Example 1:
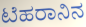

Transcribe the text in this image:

ಟೆಹರಾನಿನ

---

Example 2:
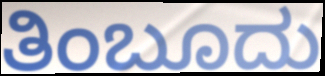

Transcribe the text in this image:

ತಿಂಬೂದು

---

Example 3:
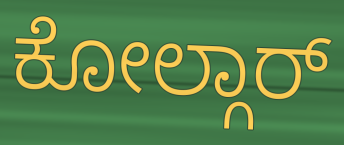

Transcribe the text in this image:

ಕೋಲ್ಗಾರ್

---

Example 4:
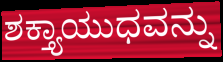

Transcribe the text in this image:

ಶಕ್ತ್ಯಾಯುಧವನ್ನು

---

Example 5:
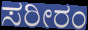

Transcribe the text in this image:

ಸರೀರಂ